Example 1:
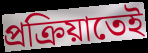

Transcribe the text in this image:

প্রক্রিয়াতেই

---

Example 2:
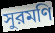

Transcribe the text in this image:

সুরমণি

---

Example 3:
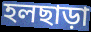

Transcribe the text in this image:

হলছাড়া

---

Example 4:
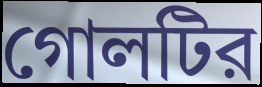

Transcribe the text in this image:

গোলটির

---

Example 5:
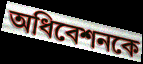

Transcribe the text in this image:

অধিবেশনকে